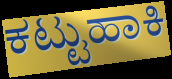
ಕಟ್ಟುಹಾಕಿ